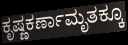
ಕೃಷ್ಣಕರ್ಣಾಮೃತಕ್ಕೂ